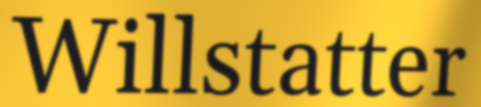
Willstatter